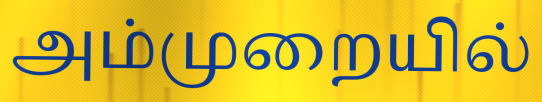
அம்முறையில்